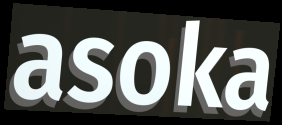
asoka